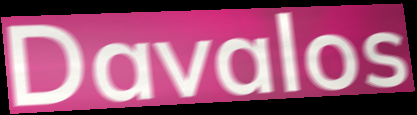
Davalos